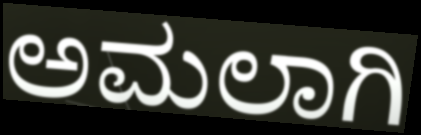
ಅಮಲಾಗಿ